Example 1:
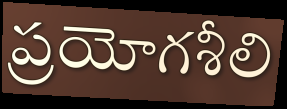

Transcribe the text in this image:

ప్రయోగశీలి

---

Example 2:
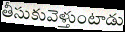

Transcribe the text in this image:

తీసుకువెళ్తుంటాడు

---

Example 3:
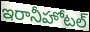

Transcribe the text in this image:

ఇరానీహోటల్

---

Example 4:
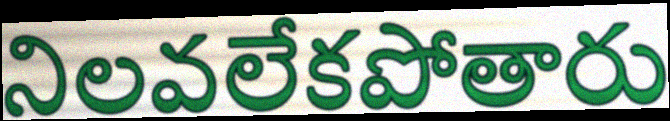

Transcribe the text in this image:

నిలవలేకపోతారు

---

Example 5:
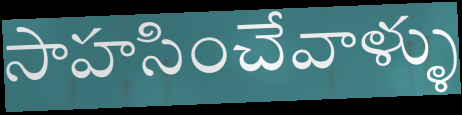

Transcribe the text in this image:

సాహసించేవాళ్ళు